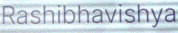
Rashibhavishya